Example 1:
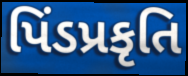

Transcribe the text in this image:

પિંડપ્રકૃતિ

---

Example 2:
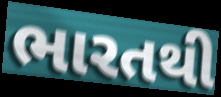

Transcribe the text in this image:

ભારતથી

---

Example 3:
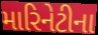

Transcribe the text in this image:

મારિનેટીના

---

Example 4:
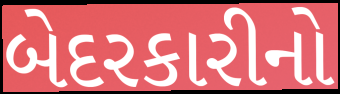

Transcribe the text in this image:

બેદરકારીનો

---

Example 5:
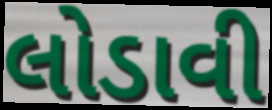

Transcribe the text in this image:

લોડાવી